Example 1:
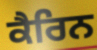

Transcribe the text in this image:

ਕੈਰਿਨ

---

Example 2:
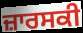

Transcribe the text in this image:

ਜ਼ਾਰਸਕੀ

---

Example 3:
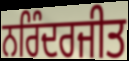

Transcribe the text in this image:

ਨਰਿੰਦਰਜੀਤ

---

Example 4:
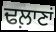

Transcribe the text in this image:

ਢਲ਼ਾਣਾਂ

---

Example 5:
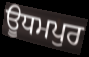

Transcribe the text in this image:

ਊਧਮਪੁਰ